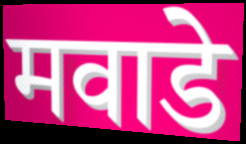
मवाडे